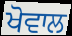
ਖੋਵਾਲ